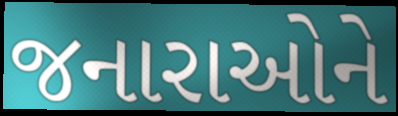
જનારાઓને